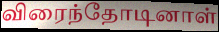
விரைந்தோடினாள்